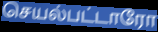
செயல்பட்டாரோ